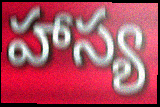
హాస్య